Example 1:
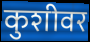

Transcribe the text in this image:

कुशीवर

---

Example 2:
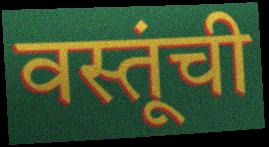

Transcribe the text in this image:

वस्तूंची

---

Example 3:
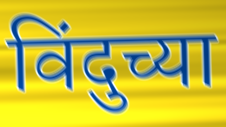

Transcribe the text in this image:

विंदुच्या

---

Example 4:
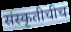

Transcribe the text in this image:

संस्कृतीचीच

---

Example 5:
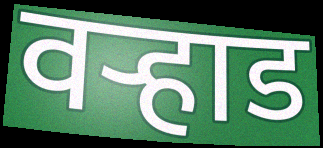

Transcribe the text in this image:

वऱ्हाड